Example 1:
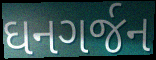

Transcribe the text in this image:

ઘનગર્જન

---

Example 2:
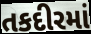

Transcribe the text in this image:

તકદીરમાં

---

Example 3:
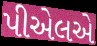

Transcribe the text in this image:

પીએલએ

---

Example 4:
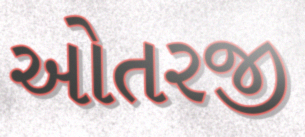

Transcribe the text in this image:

ઓતરજી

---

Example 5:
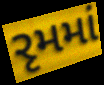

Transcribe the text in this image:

રૃમમાં